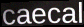
caecal